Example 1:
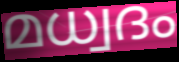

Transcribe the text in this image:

മധ്വദം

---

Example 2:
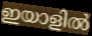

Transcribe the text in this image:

ഇയാളിൽ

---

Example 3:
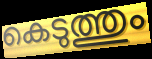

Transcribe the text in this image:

കെടുത്തും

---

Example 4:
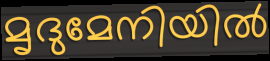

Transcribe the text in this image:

മൃദുമേനിയിൽ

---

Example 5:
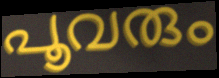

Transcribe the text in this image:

പൂവരും